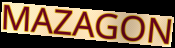
MAZAGON